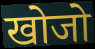
खोजो